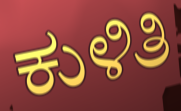
ಕುಳಿತಿ